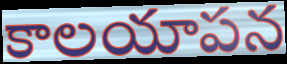
కాలయాపన